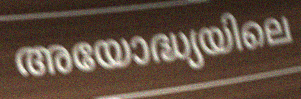
അയോദ്ധ്യയിലെ